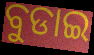
ବୁଡାଇ